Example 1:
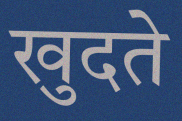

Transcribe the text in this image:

खुदते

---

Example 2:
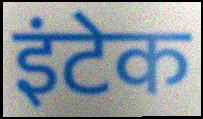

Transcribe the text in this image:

इंटेक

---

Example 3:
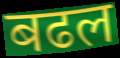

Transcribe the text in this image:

बढल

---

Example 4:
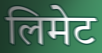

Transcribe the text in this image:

लिमेट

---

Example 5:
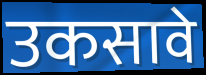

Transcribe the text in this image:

उकसावे